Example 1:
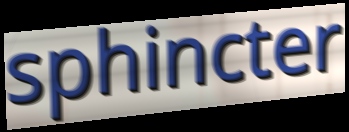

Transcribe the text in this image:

sphincter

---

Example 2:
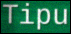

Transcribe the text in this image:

Tipu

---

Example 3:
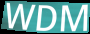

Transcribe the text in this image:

WDM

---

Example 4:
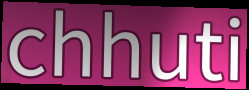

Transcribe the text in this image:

chhuti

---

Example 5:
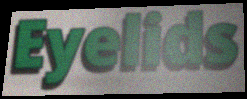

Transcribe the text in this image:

Eyelids